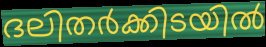
ദലിതർക്കിടയിൽ